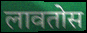
लावतोस